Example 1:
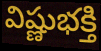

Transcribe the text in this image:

విష్ణుభక్తి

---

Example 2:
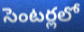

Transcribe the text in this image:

సెంటర్లలో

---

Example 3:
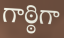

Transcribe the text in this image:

గాఠ్ఠిగా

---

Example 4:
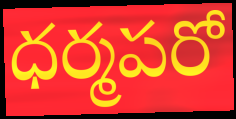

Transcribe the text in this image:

ధర్మపరో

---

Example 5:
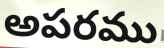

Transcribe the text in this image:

అపరము